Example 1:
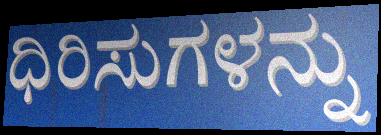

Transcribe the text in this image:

ಧಿರಿಸುಗಳನ್ನು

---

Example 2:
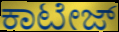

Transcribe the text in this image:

ಕಾಟೇಜ್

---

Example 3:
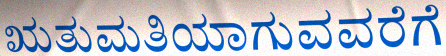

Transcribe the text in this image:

ಋತುಮತಿಯಾಗುವವರೆಗೆ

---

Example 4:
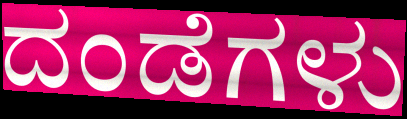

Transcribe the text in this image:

ದಂಡೆಗಳು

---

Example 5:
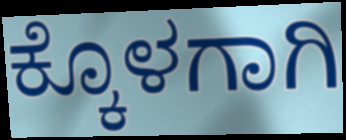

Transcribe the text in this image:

ಕ್ಕೊಳಗಾಗಿ